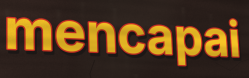
mencapai